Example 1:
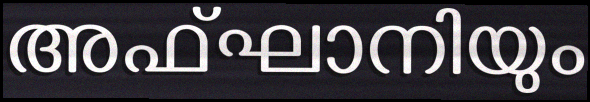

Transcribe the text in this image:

അഫ്ഘാനിയും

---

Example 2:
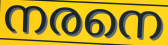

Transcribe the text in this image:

നരനെ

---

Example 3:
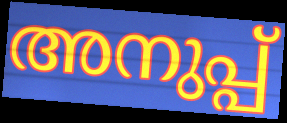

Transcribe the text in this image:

അനുപ്പ്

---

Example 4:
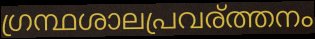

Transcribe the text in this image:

ഗ്രന്ഥശാലപ്രവര്ത്തനം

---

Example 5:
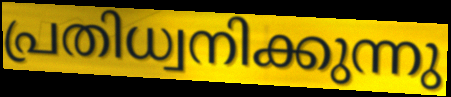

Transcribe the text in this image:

പ്രതിധ്വനിക്കുന്നു